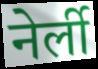
नेर्ली